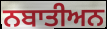
ਨਬਾਤੀਅਨ